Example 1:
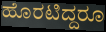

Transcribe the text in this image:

ಹೊರಟಿದ್ದರೂ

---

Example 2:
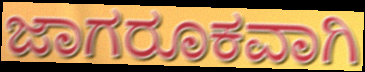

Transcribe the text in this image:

ಜಾಗರೂಕವಾಗಿ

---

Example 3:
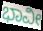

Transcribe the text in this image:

ಭಾವೀ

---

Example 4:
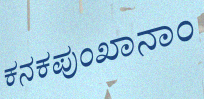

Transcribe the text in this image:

ಕನಕಪುಂಖಾನಾಂ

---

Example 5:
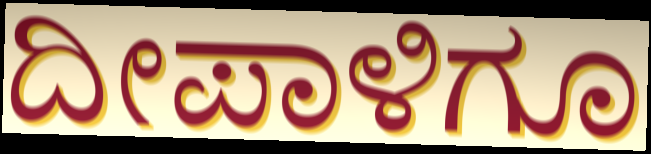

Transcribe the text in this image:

ದೀಪಾಳಿಗೂ